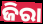
ଜିରା